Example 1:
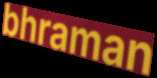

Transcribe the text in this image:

bhraman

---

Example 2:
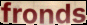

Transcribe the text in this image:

fronds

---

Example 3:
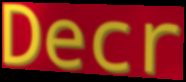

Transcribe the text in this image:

Decr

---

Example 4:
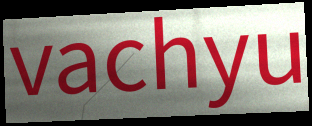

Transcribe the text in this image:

vachyu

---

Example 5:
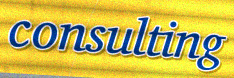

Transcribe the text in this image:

consulting